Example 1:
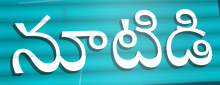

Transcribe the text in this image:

నూటిడి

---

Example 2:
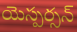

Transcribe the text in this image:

యెస్పర్సన్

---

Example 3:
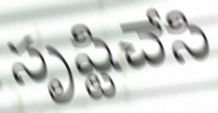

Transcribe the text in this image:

సృష్టిచేసి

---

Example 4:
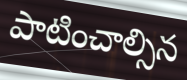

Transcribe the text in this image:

పాటించాల్సిన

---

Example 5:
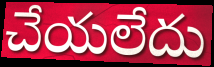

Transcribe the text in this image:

చేయలేదు